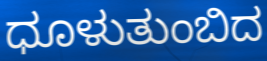
ಧೂಳುತುಂಬಿದ